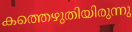
കത്തെഴുതിയിരുന്നു